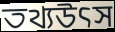
তথ্যউৎস